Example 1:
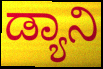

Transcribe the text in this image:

ಡ್ಯಾನಿ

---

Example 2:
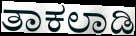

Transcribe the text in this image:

ತಾಕಲಾಡಿ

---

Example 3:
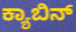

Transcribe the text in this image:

ಕ್ಯಾಬಿನ್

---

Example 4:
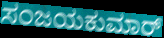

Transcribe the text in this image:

ಸಂಜಯಕುಮಾರ್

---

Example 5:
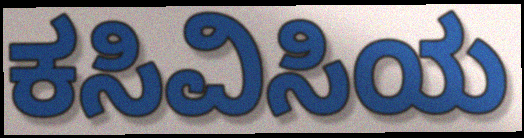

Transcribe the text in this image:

ಕಸಿವಿಸಿಯ